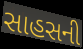
સાહસની